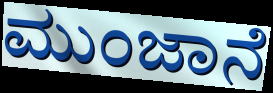
ಮುಂಜಾನೆ